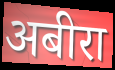
अबीरा